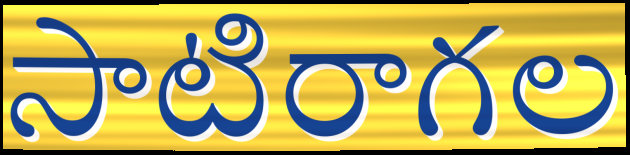
సాటిరాగల